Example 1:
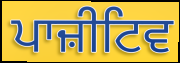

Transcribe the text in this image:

ਪਾਜ਼ੀਟਿਵ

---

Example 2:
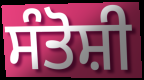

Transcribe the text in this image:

ਸੰਤੋਸ਼ੀ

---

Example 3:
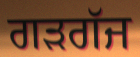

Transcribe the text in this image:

ਗਡ਼ਗੱਜ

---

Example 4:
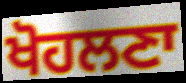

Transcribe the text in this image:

ਖੋਹਲਣਾ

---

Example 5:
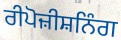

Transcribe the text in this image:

ਰੀਪੋਜ਼ੀਸ਼ਨਿੰਗ